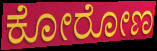
ಕೋರೋಣ